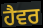
ਹੈਵਰ